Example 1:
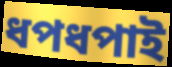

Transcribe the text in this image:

ধপধপাই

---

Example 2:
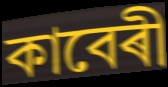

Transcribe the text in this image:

কাবেৰী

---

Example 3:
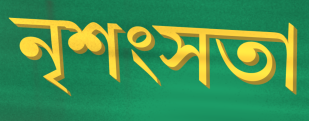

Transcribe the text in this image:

নৃশংসতা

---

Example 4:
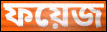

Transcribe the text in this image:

ফয়েজ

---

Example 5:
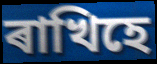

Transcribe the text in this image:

ৰাখিহে